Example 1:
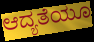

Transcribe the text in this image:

ಆದ್ಯತೆಯೂ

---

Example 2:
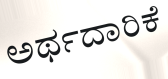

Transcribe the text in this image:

ಅರ್ಥದಾರಿಕೆ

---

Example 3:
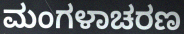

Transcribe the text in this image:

ಮಂಗಳಾಚರಣ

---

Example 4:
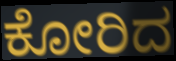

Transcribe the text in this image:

ಕೋರಿದ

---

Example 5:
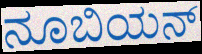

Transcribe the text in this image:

ನೂಬಿಯನ್